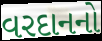
વરદાનનો